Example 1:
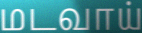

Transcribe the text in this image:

மடவாய்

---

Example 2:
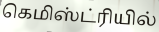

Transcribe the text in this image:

கெமிஸ்ட்ரியில்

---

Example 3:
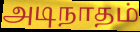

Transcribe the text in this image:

அடிநாதம்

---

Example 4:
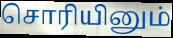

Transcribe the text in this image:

சொரியினும்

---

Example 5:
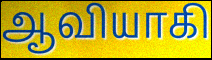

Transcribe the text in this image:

ஆவியாகி